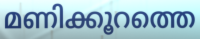
മണിക്കൂറത്തെ